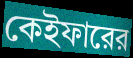
কেইফারের